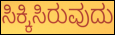
ಸಿಕ್ಕಿಸಿರುವುದು